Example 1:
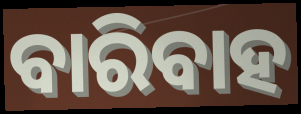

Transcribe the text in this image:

ବାରିବାହ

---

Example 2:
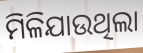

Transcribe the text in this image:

ମିଳିଯାଉଥିଲା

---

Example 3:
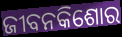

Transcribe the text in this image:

ଜୀବନକିଶୋର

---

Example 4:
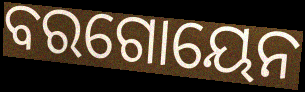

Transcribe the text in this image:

ବରଗୋୟେନ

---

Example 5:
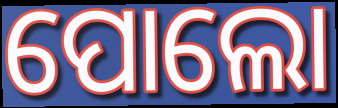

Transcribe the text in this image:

ପୋଲୋ